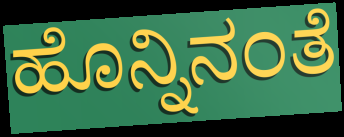
ಹೊನ್ನಿನಂತೆ